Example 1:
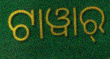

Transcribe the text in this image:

ଟାୱାର୍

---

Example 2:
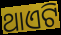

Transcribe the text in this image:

ଥାଏଟି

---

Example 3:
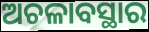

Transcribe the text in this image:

ଅଚଳାବସ୍ଥାର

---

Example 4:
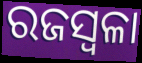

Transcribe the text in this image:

ରଜସ୍ବଳା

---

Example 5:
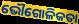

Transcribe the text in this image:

ଭୌଗୋଳିକତା